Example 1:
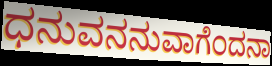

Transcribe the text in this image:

ಧನುವನನುವಾಗೆಂದನಾ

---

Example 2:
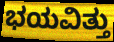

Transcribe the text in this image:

ಭಯವಿತ್ತು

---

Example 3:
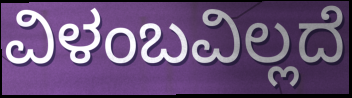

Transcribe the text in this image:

ವಿಳಂಬವಿಲ್ಲದೆ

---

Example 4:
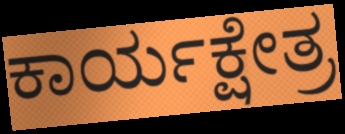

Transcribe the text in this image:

ಕಾರ್ಯಕ್ಷೇತ್ರ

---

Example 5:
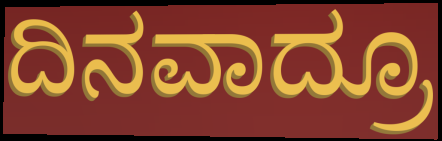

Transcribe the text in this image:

ದಿನವಾದ್ರೂ